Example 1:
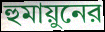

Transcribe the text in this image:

হুমায়ুনের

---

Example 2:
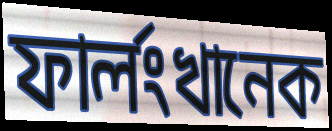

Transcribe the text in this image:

ফার্লংখানেক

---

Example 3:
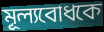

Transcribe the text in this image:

মূল্যবোধকে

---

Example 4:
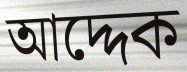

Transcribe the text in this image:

আদ্দেক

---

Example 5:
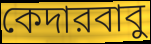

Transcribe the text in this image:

কেদারবাবু